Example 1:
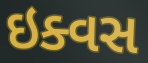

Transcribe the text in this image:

ઇક્વસ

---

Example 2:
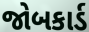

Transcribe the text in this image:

જોબકાર્ડ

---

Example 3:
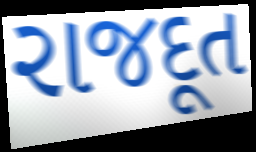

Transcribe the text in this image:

રાજદૂત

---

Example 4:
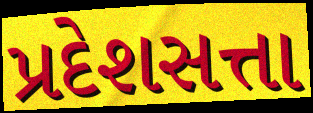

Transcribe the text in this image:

પ્રદેશસત્તા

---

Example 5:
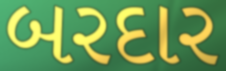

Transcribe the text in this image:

બરદાર